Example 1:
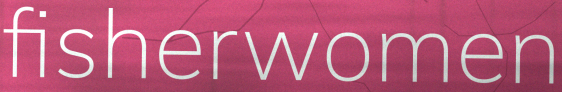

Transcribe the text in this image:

fisherwomen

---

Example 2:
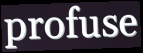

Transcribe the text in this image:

profuse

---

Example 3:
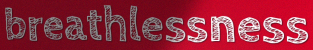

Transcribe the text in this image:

breathlessness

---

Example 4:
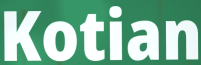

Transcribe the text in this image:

Kotian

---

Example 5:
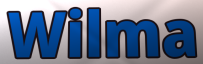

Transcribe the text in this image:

Wilma